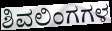
ಶಿವಲಿಂಗಗಳ